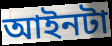
আইনটা